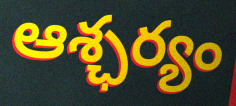
ఆశ్ఛర్యం